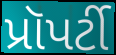
પ્રૉપર્ટી